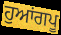
ਹੁਆਂਗਪੂ